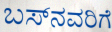
ಬಸ್‌ನವರಿಗೆ